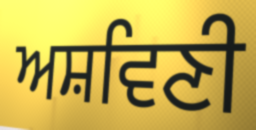
ਅਸ਼ਵਿਣੀ